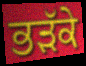
ਭੜੱਕੇ